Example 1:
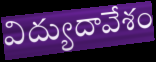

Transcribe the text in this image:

విద్యుదావేశం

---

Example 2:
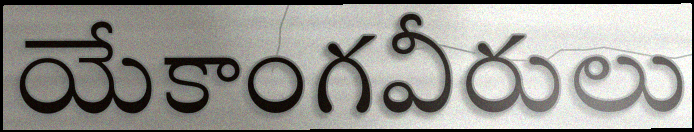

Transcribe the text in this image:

యేకాంగవీరులు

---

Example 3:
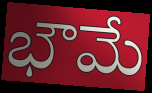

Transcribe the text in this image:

భౌమే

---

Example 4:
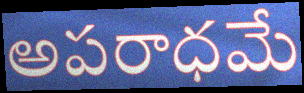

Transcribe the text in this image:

అపరాధమే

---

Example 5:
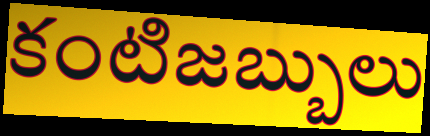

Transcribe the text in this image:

కంటిజబ్బులు